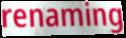
renaming